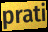
prati